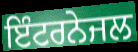
ਇੰਟਰਨੇਜਲ